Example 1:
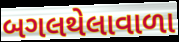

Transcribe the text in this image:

બગલથેલાવાળા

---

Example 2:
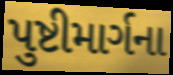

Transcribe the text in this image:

પુષ્ટીમાર્ગના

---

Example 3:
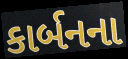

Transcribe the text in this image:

કાર્બનના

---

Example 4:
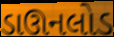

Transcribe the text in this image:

ડાઊનલોડ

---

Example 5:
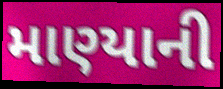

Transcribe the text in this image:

માણ્યાની